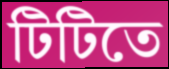
টিটিতে